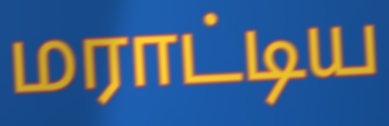
மராட்டிய